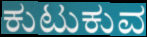
ಕುಟುಕುವ